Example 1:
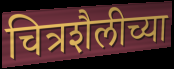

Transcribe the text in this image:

चित्रशैलीच्या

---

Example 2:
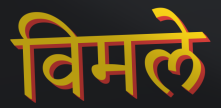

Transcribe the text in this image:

विमले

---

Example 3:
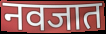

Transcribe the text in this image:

नवजात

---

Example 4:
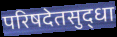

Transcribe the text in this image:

परिषदेतसुद्धा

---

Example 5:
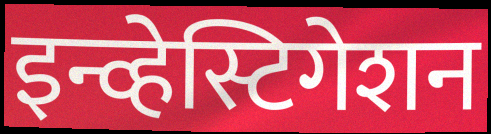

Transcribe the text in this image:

इन्व्हेस्टिगेशन